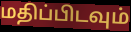
மதிப்பிடவும்